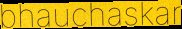
bhauchaskar